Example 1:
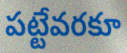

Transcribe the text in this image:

పట్టేవరకూ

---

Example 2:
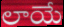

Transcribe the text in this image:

లాయే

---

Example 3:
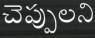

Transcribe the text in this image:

చెప్పులని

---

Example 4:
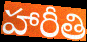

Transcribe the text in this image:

హారీతి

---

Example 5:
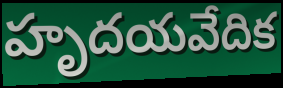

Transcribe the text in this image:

హృదయవేదిక